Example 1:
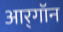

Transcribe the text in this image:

आर्‌गॉन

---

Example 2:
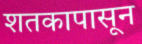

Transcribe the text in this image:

शतकापासून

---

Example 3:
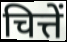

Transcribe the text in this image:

चित्तें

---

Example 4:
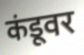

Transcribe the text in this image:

कंडूवर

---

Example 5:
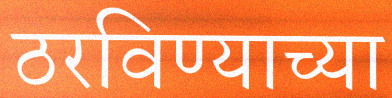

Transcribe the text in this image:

ठरविण्याच्या